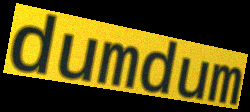
dumdum